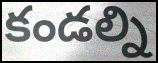
కండల్ని